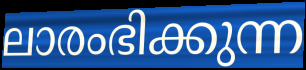
ലാരംഭിക്കുന്ന